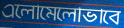
এলোমেলোভাবে